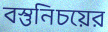
বস্তুনিচয়ের